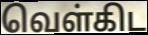
வெள்கிட